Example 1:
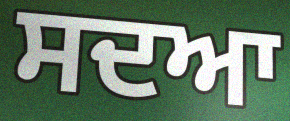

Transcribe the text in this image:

ਸਦਆ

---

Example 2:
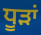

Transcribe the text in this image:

ਧੂੜਾਂ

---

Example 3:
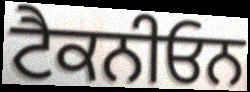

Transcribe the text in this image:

ਟੈਕਨੀਓਨ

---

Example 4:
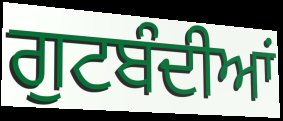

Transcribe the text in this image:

ਗੁਟਬੰਦੀਆਂ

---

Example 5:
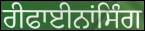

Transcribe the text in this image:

ਰੀਫਾਈਨਾਂਸਿੰਗ